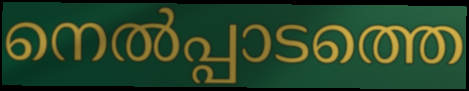
നെൽപ്പാടത്തെ